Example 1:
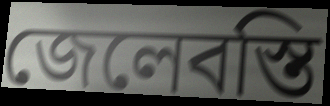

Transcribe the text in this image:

জেলেবস্তি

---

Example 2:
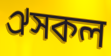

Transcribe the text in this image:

ঐসকল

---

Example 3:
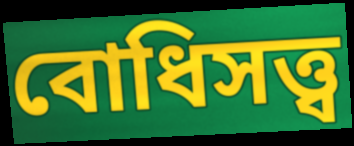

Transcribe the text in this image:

বোধিসত্ত্ব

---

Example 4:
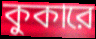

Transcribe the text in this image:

কুকারে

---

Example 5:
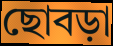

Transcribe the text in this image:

ছোবড়া